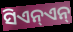
ସିଏନ୍ଏନ୍